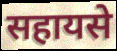
सहायसे